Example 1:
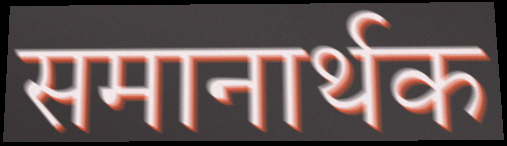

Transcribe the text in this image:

समानार्थक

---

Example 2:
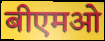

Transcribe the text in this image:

बीएमओ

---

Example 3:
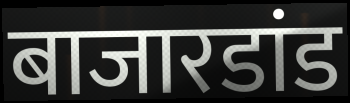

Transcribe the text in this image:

बाजारडांड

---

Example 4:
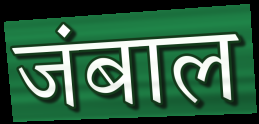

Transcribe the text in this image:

जंबाल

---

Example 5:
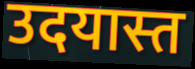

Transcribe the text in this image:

उदयास्त